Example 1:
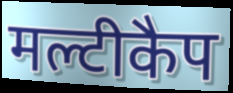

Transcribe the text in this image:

मल्टीकैप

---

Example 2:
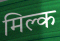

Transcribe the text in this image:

मिल्क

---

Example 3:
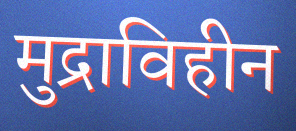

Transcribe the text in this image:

मुद्राविहीन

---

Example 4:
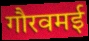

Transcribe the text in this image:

गौरवमई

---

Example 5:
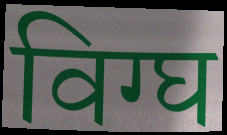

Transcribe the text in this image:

विग्घ